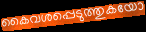
കൈവശപ്പെടുത്തുകയോ